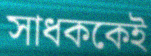
সাধককেই